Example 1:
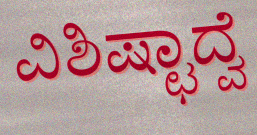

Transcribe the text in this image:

ವಿಶಿಷ್ಟಾದ್ವೆ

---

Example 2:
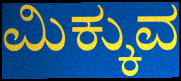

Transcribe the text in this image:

ಮಿಕ್ಕುವ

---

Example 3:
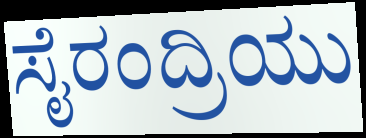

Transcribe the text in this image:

ಸೈರಂದ್ರಿಯು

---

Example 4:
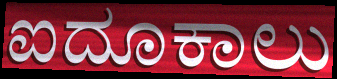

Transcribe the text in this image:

ಐದೂಕಾಲು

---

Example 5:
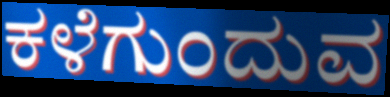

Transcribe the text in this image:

ಕಳೆಗುಂದುವ